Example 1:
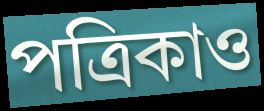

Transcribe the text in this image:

পত্রিকাও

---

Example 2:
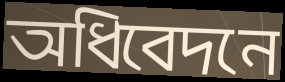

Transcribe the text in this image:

অধিবেদনে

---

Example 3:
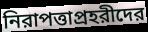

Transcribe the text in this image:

নিরাপত্তাপ্রহরীদের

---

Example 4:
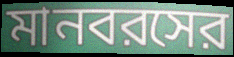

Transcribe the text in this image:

মানবরসের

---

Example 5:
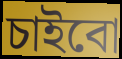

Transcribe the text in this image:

চাইবো